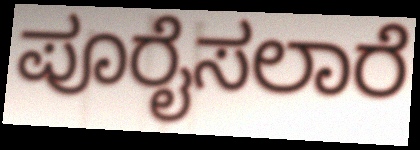
ಪೂರೈಸಲಾರೆ